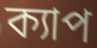
ক্যাপ